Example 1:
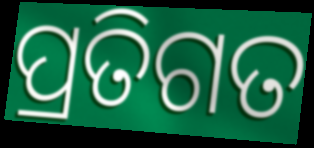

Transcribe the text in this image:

ପ୍ରତିଗତ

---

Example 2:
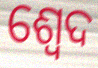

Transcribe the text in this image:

ଶ୍ଵେଦ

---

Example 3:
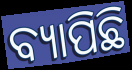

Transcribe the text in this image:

ବ୍ୟାପିଛି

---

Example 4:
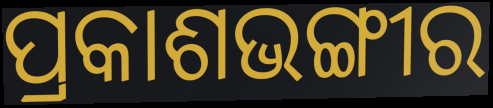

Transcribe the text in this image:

ପ୍ରକାଶଭଙ୍ଗୀର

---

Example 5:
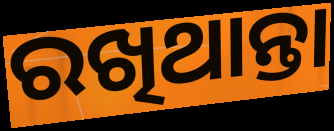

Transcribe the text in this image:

ରଖିଥାନ୍ତା